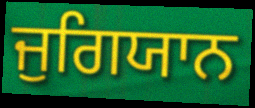
ਜੁਗਿਯਾਨ